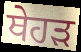
ਥੇਹੜ